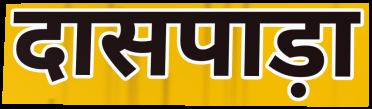
दासपाड़ा